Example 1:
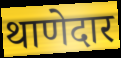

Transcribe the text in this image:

थाणेदार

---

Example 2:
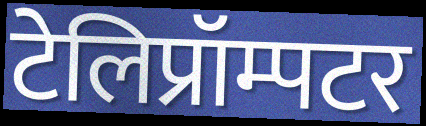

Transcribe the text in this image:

टेलिप्रॉम्पटर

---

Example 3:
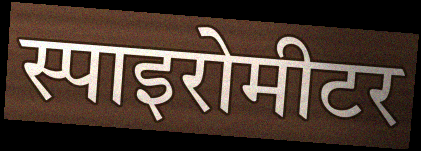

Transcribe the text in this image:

स्पाइरोमीटर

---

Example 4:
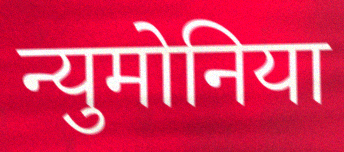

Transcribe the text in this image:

न्युमोनिया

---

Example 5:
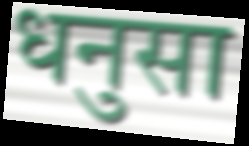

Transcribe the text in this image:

धनुसा